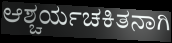
ಆಶ್ಚರ್ಯಚಕಿತನಾಗಿ